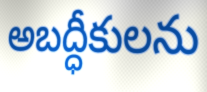
అబద్ధీకులను